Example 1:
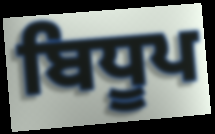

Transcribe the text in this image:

ਬਿਧੂਪ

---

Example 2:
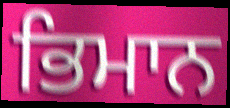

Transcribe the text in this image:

ਭਿਮਾਨ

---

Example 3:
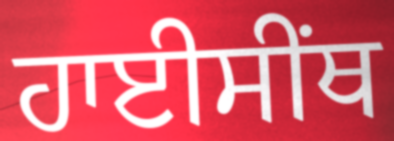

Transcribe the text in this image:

ਹਾਈਸੀੰਥ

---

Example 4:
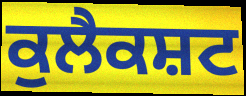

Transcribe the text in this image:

ਕੁਲੈਕਸ਼ਟ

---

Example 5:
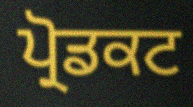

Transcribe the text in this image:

ਪ੍ਰੋਡਕਟ